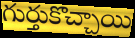
గుర్తుకొచ్చాయి